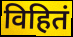
विहितं